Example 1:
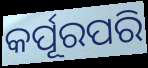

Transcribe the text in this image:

କର୍ପୂରପରି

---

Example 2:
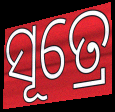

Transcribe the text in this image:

ସୂତ୍ରେ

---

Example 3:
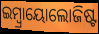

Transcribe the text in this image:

ଇମ୍ବ୍ରାୟୋଲୋଜିଷ୍ଟ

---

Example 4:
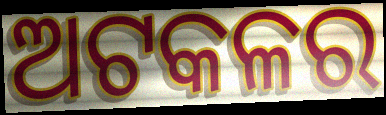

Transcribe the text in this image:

ଅଟକଳର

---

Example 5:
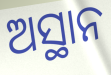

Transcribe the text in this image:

ଅସ୍ଥାନ